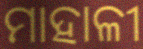
ମାହାଳୀ